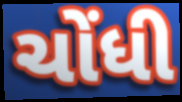
ચોંધી